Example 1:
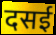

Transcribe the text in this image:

दसई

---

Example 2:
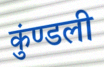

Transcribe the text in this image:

कुंण्डली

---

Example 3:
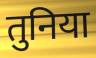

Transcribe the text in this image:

तुनिया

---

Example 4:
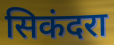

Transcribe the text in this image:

सिकंदरा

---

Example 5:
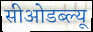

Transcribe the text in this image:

सीओडब्ल्यू